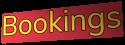
Bookings